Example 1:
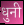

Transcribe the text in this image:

धुनी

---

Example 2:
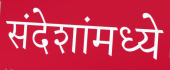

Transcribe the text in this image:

संदेशांमध्ये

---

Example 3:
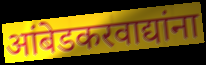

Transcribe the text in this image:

आंबेडकरवाद्यांना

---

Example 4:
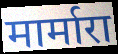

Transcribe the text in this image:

मार्मारा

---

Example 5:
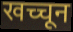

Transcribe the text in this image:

खच्चून